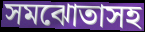
সমঝোতাসহ